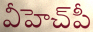
వీహెచ్‌పీ